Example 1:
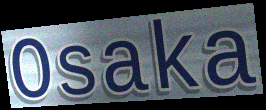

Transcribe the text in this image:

Osaka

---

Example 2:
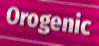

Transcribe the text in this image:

Orogenic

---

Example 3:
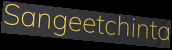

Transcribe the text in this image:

Sangeetchinta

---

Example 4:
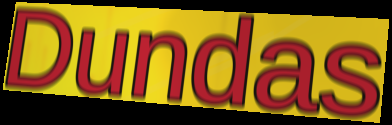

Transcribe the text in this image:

Dundas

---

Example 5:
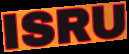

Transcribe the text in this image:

ISRU